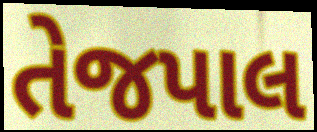
તેજપાલ